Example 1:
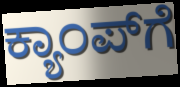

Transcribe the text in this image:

ಕ್ಯಾಂಪ್‍ಗೆ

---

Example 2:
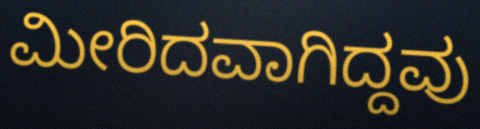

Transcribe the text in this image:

ಮೀರಿದವಾಗಿದ್ದವು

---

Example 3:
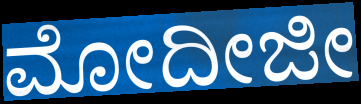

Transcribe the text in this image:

ಮೋದೀಜೀ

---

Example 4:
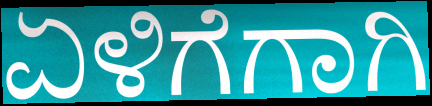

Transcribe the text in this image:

ಏಳಿಗೆಗಾಗಿ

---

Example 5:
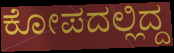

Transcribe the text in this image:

ಕೋಪದಲ್ಲಿದ್ದ